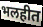
भलहीत